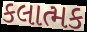
કલાત્મક